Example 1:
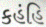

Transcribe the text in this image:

કહંહિ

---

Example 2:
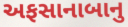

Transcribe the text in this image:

અફસાનાબાનુ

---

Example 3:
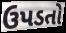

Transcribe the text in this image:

ઉપડતો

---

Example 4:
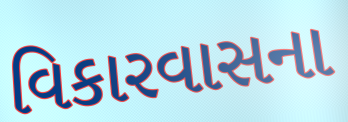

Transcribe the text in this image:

વિકારવાસના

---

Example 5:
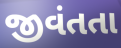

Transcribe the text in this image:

જીવંતતા